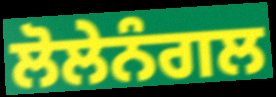
ਲੋਲੇਨੰਗਲ